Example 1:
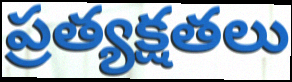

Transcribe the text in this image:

ప్రత్యక్షతలు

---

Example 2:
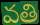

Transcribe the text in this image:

వతి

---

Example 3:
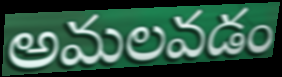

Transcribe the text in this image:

అమలవడం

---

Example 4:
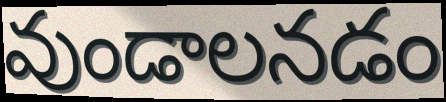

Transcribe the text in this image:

వుండాలనడం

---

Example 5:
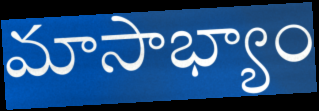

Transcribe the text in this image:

మాసాభ్యాం